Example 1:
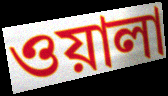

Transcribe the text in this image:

ওয়ালা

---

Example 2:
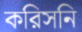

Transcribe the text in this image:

করিসনি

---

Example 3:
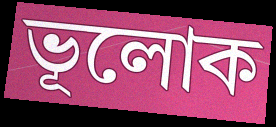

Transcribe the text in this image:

ভূলোক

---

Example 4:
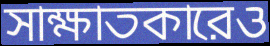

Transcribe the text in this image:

সাক্ষাতকারেও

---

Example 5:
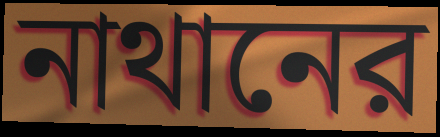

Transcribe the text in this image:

নাথানের